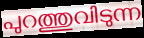
പുറത്തുവിടുന്ന